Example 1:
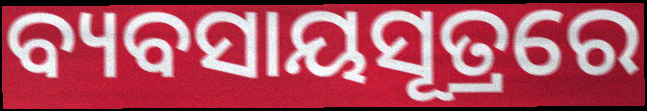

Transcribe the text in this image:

ବ୍ୟବସାୟସୂତ୍ରରେ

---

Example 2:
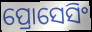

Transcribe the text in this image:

ପ୍ରୋସେସିଂ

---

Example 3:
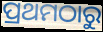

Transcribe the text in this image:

ପ୍ରଥମଠାରୁ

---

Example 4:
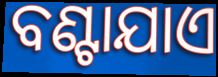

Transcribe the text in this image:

ବଣ୍ଟାଯାଏ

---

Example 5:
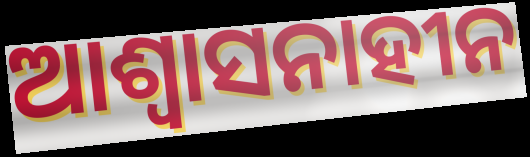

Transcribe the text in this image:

ଆଶ୍ୱାସନାହୀନ